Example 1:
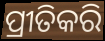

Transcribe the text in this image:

ପ୍ରୀତିକରି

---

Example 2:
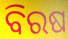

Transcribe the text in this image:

ବିରଷ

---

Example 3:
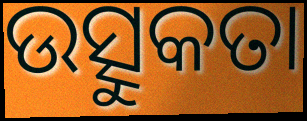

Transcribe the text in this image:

ଉତ୍ସୁକତା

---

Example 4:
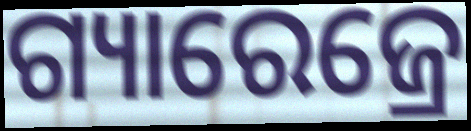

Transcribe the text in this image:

ଗ୍ୟାରେଜ୍ରେ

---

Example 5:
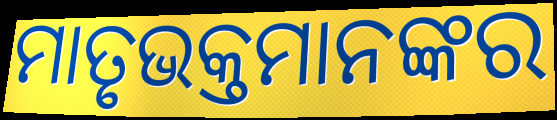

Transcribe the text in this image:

ମାତୃଭକ୍ତମାନଙ୍କର